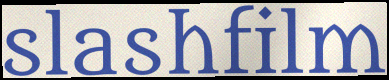
slashfilm